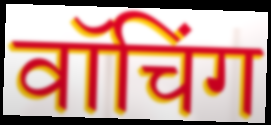
वॉचिंग